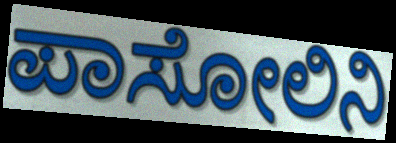
ಪಾಸೋಲಿನಿ